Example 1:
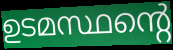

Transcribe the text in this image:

ഉടമസ്ഥന്റെ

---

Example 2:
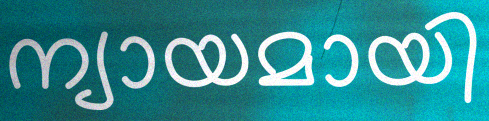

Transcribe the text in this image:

ന്യായമായി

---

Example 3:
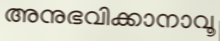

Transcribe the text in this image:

അനുഭവിക്കാനാവൂ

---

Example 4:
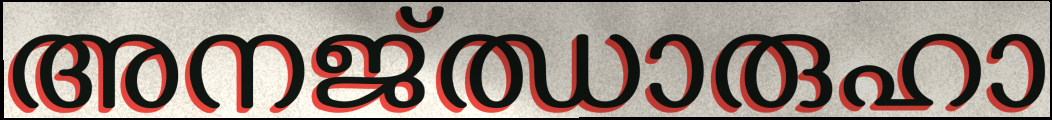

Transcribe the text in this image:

അനജ്ഝാരുഹാ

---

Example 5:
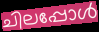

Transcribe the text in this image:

ചിലപ്പോൾ